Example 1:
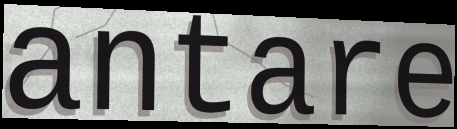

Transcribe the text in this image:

antare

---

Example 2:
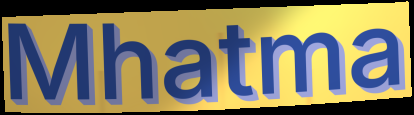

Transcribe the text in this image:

Mhatma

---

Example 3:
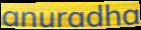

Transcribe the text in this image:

anuradha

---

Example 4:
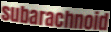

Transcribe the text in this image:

subarachnoid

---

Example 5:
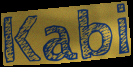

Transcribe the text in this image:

Kabi